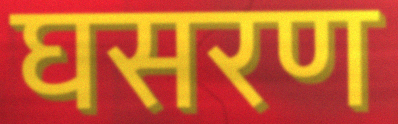
घसरण